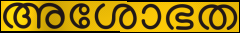
അശോഭത